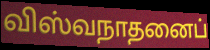
விஸ்வநாதனைப்